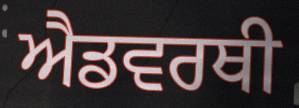
ਐਡਵਰਥੀ